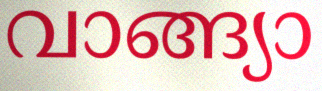
വാങ്ങ്യാ